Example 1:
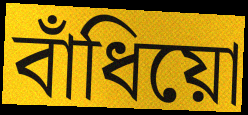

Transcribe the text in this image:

বাঁধিয়ো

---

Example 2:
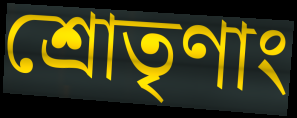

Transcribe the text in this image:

শ্রোতৃণাং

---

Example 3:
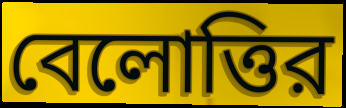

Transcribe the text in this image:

বেলোত্তির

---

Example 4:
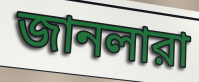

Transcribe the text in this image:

জানলারা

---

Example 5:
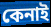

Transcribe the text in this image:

কেনাই